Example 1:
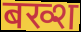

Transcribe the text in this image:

बख्श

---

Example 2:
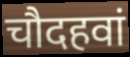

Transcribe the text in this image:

चौदहवां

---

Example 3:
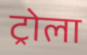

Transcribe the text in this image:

ट्रोला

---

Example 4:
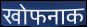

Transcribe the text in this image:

खोफनाक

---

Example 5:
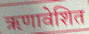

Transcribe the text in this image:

ऋणावेशित